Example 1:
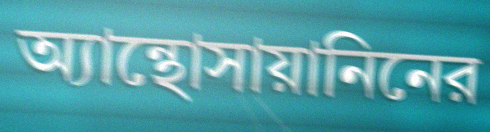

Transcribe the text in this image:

অ্যান্থোসায়ানিনের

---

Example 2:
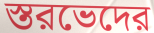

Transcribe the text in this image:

স্তরভেদের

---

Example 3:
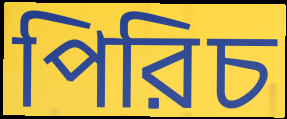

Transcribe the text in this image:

পিরিচ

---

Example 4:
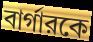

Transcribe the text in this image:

বার্গারকে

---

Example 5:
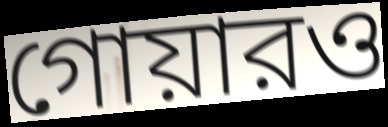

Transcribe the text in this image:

গোয়ারও